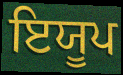
ਇਯੂਪ